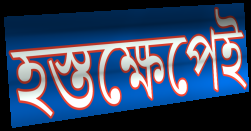
হস্তক্ষেপেই